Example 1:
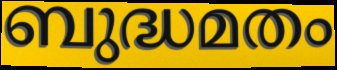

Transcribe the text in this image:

ബുദ്ധമതം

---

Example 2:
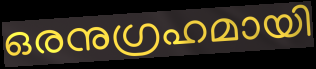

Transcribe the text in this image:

ഒരനുഗ്രഹമായി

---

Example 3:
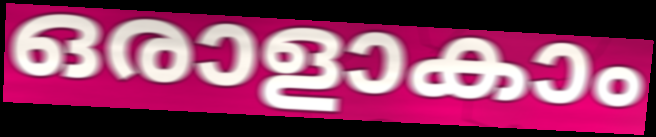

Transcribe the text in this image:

ഒരാളാകാം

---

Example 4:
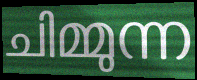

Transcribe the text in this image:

ചിമ്മുന്ന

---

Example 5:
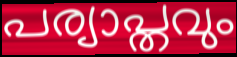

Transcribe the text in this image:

പര്യാപ്തവും